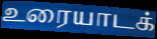
உரையாடக்